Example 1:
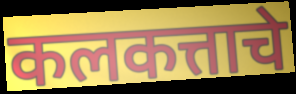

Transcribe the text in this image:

कलकत्ताचे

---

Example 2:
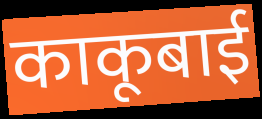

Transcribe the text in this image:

काकूबाई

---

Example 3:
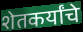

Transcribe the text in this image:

शेतकर्यांचे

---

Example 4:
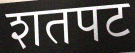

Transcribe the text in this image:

शतपट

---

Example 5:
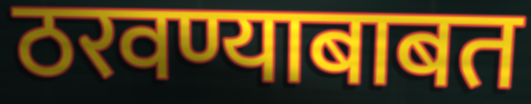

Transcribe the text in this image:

ठरवण्याबाबत